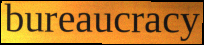
bureaucracy